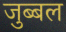
जुब्बल